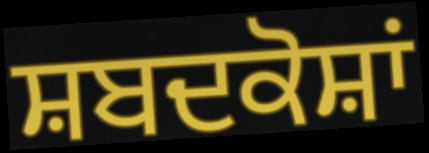
ਸ਼ਬਦਕੋਸ਼ਾਂ